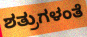
ಶತ್ರುಗಳಂತೆ